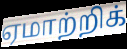
ஏமாற்றிக்